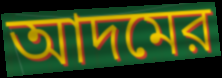
আদমের